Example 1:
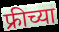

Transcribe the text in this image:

फ्रीच्या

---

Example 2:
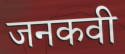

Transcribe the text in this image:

जनकवी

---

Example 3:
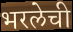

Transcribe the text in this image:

भरलेची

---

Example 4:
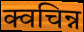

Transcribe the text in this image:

क्वचिन्न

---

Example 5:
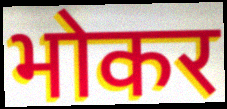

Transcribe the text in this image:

भोकर